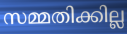
സമ്മതിക്കില്ല